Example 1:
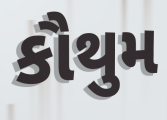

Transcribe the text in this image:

કૌથુમ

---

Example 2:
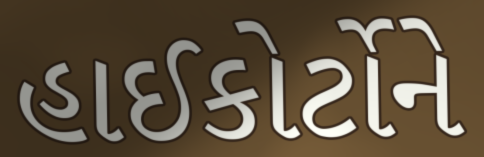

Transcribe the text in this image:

હાઈકોર્ટોને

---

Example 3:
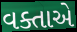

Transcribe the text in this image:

વક્તાએ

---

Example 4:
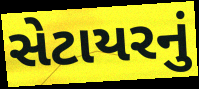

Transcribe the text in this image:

સેટાયરનું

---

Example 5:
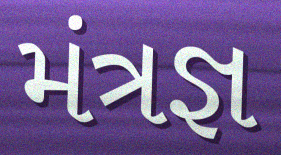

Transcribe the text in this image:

મંત્રજ્ઞ